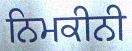
ਨਿਮਕੀਨੀ